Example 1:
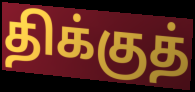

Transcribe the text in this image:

திக்குத்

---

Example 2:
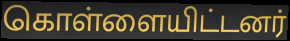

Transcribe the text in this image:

கொள்ளையிட்டனர்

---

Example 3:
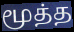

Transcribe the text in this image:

மூத்த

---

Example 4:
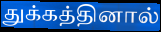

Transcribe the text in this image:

துக்கத்தினால்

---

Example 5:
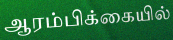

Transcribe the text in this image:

ஆரம்பிக்கையில்